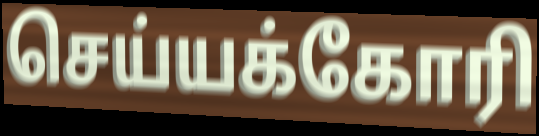
செய்யக்கோரி